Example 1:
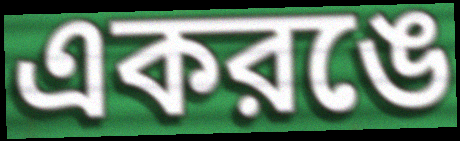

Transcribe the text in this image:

একরঙে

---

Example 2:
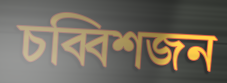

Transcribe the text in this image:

চব্বিশজন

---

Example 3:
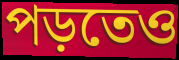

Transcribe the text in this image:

পড়তেও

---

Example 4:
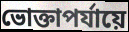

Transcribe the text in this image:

ভোক্তাপর্যায়ে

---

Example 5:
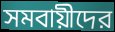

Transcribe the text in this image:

সমবায়ীদের